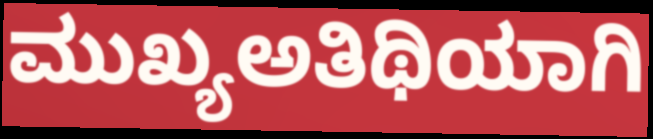
ಮುಖ್ಯಅತಿಥಿಯಾಗಿ